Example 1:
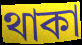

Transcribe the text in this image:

থাকা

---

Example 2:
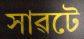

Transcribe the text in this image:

সাৱটে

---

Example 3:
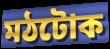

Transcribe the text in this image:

মঠটোক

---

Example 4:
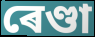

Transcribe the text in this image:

ৰেণ্ডা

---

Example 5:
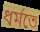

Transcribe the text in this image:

ধৰ্মতে